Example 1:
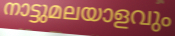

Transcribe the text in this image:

നാട്ടുമലയാളവും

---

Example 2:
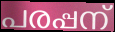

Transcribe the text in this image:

പരപ്പന്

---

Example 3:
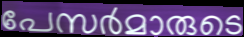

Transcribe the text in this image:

പേസർമാരുടെ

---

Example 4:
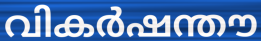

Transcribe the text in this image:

വികർഷന്തൗ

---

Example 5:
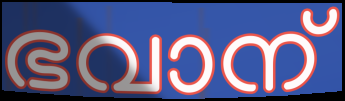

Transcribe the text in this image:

ഭവാന്